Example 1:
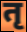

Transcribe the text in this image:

तृ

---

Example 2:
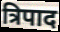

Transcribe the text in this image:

त्रिपाद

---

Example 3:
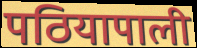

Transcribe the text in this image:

पठियापाली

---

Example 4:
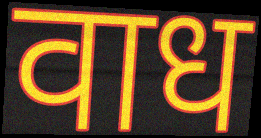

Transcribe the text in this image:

वाध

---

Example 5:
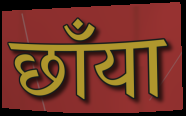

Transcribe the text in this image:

छाँया